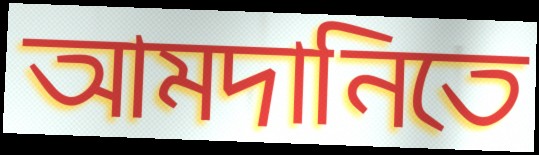
আমদানিতে